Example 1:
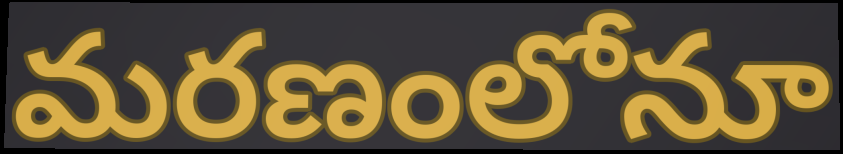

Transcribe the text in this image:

మరణంలోనూ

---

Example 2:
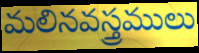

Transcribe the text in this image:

మలినవస్త్రములు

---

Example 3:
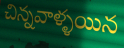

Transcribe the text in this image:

చిన్నవాళ్ళయిన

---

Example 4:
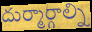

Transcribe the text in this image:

దుర్మార్గాల్ని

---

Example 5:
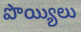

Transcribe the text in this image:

పొయ్యిలు